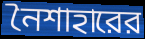
নৈশাহারের